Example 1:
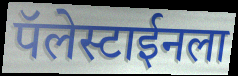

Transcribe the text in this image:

पॅलेस्टाईनला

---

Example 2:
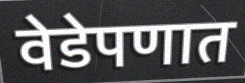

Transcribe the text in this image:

वेडेपणात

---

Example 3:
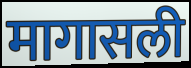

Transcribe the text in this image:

मागासली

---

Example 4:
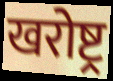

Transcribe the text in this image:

खरोष्ट्र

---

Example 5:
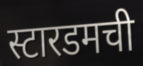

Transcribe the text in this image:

स्टारडमची